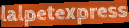
lalpetexpress